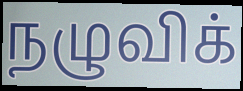
நழுவிக்